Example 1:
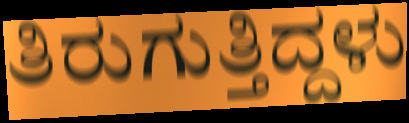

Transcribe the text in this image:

ತಿರುಗುತ್ತಿದ್ದಳು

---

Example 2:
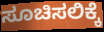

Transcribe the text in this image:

ಸೂಚಿಸಲಿಕ್ಕೆ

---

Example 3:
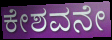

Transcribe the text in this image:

ಕೇಶವನೇ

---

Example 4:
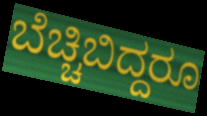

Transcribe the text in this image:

ಬೆಚ್ಚಿಬಿದ್ದರೂ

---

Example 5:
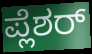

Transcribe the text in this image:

ಪ್ಲೆಶರ್